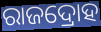
ରାଜଦ୍ରୋହ